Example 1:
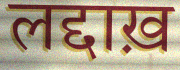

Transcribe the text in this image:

लद्दाख़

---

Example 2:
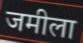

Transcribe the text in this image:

जमीला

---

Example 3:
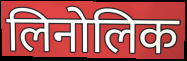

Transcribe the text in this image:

लिनोलिक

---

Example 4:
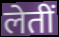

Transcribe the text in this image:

लेतीं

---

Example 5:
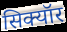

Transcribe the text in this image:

सिक्यॉर